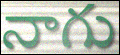
నాగు